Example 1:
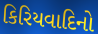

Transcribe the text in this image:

કિરિયવાદિનો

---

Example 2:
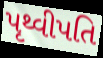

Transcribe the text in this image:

પૃથ્વીપતિ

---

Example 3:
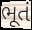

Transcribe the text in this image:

ભૂતં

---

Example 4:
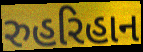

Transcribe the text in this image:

રુહરિહાન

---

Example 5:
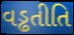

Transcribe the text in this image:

વડ્ઢતીતિ